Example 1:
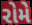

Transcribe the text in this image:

રોમે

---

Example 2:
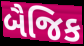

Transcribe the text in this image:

બૈજિક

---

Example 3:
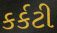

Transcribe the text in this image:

કર્કટી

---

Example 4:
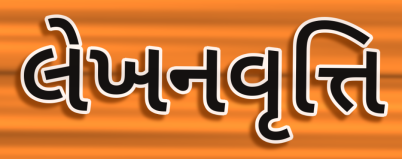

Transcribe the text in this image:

લેખનવૃત્તિ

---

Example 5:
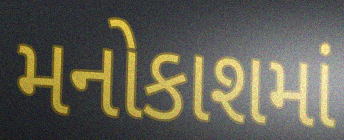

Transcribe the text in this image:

મનોકાશમાં